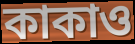
কাকাও